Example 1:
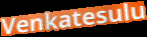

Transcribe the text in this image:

Venkatesulu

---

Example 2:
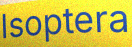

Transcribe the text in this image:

Isoptera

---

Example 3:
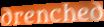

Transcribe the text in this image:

drenched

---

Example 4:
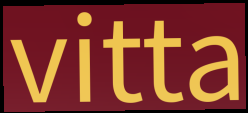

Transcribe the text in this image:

vitta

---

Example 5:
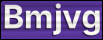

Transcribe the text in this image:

Bmjvg